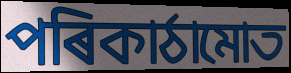
পৰিকাঠামোত